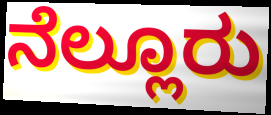
ನೆಲ್ಲೂರು